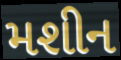
મશીન